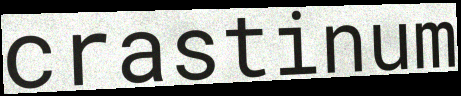
crastinum